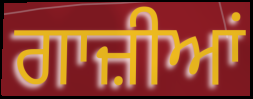
ਗਾਜ਼ੀਆਂ